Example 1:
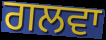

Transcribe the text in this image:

ਗਲਵਾ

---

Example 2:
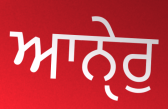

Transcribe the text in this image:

ਆਨੇੑਰੁ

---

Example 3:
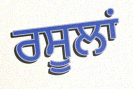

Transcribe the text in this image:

ਰਸੂਲਾਂ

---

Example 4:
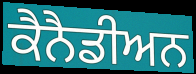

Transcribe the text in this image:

ਕੈਨੈਡੀਅਨ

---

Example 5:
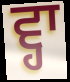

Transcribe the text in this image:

ਵ੍ਹਾ